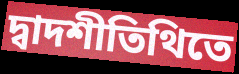
দ্বাদশীতিথিতে